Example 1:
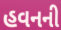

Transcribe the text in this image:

હવનની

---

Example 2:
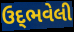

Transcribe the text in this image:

ઉદ્‌ભવેલી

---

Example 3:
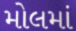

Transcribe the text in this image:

મોલમાં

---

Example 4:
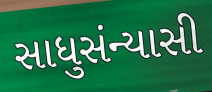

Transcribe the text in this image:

સાધુસંન્યાસી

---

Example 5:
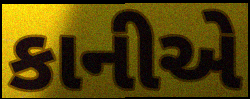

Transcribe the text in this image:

કાનીએ